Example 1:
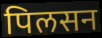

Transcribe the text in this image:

पिलसन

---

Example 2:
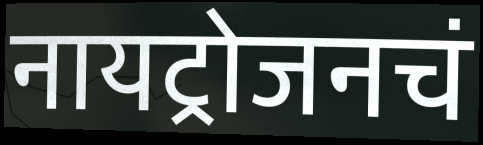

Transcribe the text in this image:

नायट्रोजनचं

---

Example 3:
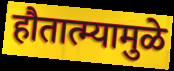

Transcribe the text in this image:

हौतात्म्यामुळे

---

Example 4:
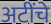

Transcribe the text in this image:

अटींचे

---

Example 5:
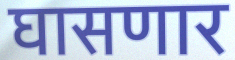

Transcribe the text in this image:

घासणार